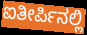
ಐತೀರ್ಪಿನಲ್ಲಿ